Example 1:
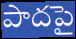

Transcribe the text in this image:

పాదపై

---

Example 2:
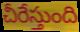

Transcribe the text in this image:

చీరేస్తుంది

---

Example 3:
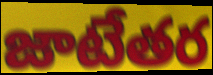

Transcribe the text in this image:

జాటేతర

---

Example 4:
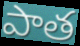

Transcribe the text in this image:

పాత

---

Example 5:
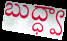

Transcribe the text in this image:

బుద్ధ్వా